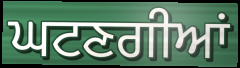
ਘਟਣਗੀਆਂ